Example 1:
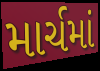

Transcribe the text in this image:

માર્ચમાં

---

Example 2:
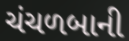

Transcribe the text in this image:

ચંચળબાની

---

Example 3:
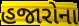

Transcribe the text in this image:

હજારોના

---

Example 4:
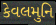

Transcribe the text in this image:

કેવલમુનિ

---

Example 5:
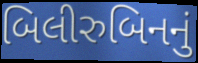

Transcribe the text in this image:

બિલીરુબિનનું